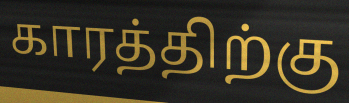
காரத்திற்கு